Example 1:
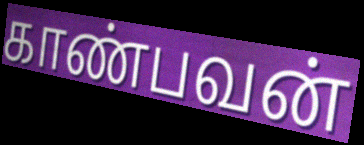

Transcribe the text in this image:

காண்பவன்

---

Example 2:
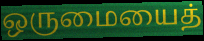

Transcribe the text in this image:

ஒருமையைத்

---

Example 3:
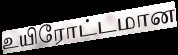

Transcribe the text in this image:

உயிரோட்டமான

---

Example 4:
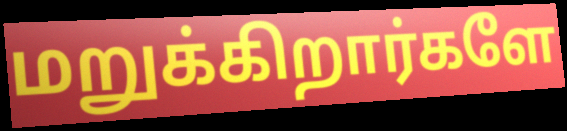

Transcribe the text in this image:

மறுக்கிறார்களே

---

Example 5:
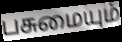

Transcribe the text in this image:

பசுமையும்